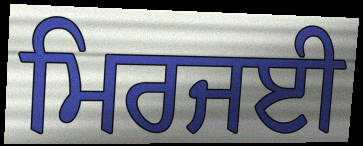
ਮਿਰਜਈ